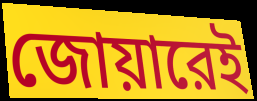
জোয়ারেই